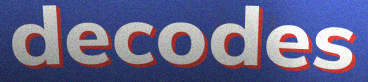
decodes